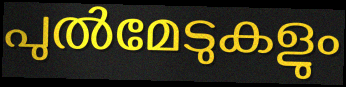
പുൽമേടുകളും